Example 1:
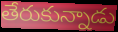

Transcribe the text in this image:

తేరుకున్నాడు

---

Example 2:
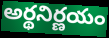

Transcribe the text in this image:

అర్థనిర్ణయం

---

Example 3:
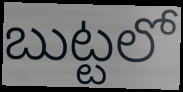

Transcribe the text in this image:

బుట్టలో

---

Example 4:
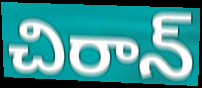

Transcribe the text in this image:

చిరాన్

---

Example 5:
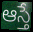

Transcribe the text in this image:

ఆస్తే